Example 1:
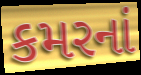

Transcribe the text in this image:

કમરનાં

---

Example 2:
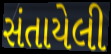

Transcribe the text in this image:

સંતાયેલી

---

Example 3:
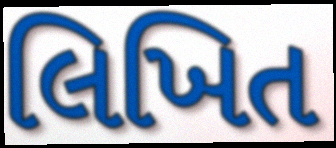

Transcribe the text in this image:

લિખિત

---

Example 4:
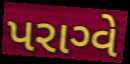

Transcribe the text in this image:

પરાગ્વે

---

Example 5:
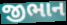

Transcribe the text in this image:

જીભાન